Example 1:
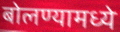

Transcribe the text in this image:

बोलण्यामध्ये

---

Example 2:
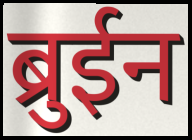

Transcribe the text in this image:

ब्रुईन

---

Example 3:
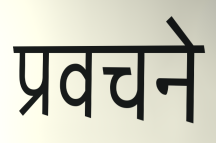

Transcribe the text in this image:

प्रवचने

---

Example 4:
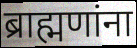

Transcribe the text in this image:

ब्राह्मणांना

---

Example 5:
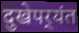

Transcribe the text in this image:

दुखेपर्यंत